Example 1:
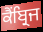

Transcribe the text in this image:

ਕੈਂਬ੍ਰਿਜ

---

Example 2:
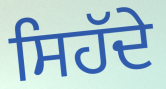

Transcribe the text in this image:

ਸਿਹੱਦੇ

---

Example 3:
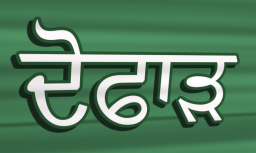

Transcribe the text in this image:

ਦੋਫਾੜ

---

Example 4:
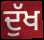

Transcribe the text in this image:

ਦੁੱਖ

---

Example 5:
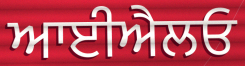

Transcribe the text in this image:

ਆਈਐਲਓ